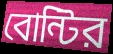
বোন্টির